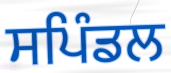
ਸਪਿੰਡਲ